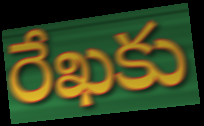
రేఖకు